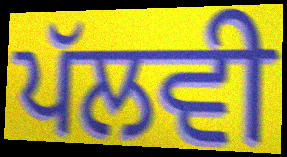
ਪੱਲਵੀ